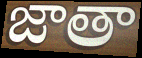
జాతా